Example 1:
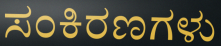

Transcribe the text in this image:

ಸಂಕಿರಣಗಳು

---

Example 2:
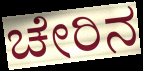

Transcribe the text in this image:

ಚೇರಿನ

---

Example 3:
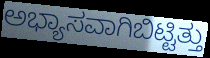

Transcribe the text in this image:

ಅಭ್ಯಾಸವಾಗಿಬಿಟ್ಟಿತ್ತು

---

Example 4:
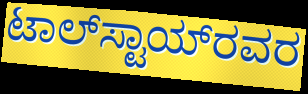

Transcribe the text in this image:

ಟಾಲ್‌ಸ್ಟಾಯ್‌ರವರ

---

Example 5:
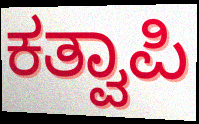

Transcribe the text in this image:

ಕತ್ವಾಪಿ